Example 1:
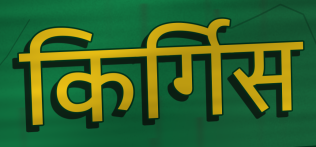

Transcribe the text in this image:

किर्गिस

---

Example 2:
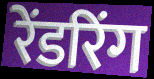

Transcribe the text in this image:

रेंडरिंग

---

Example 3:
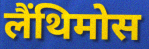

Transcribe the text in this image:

लैंथिमोस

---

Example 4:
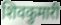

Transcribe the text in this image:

शिवकुमारी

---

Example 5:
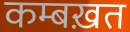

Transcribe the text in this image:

कम्बख़त